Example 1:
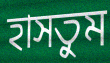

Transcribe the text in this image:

হাসতুম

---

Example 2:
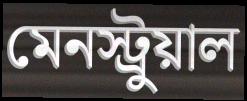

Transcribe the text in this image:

মেনস্ট্রুয়াল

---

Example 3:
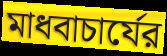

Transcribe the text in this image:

মাধবাচার্যের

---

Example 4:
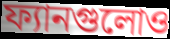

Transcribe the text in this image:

ফ্যানগুলোও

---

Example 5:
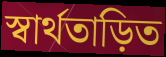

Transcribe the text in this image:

স্বার্থতাড়িত